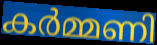
കർമ്മണി